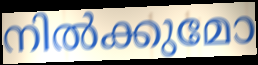
നിൽക്കുമോ